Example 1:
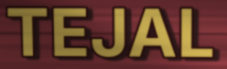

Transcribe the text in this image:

TEJAL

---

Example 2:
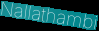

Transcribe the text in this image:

Nallathambi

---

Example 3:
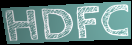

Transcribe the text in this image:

HDFC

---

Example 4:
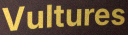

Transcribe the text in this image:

Vultures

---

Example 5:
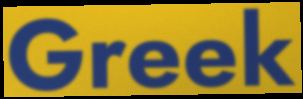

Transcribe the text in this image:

Greek